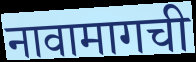
नावामागची